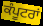
ਕੰਪੂਟਰਾਂ